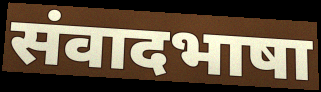
संवादभाषा